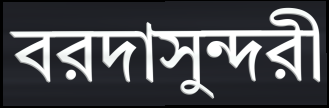
বরদাসুন্দরী